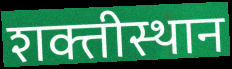
शक्तीस्थान